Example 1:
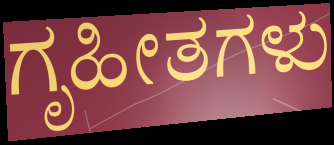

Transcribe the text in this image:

ಗೃಹೀತಗಳು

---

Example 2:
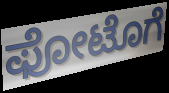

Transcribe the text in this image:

ಫೋಟೊಗೆ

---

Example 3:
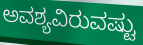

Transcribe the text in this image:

ಅವಶ್ಯವಿರುವಷ್ಟು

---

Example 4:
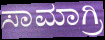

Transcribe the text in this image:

ಸಾಮಾಗ್ರಿ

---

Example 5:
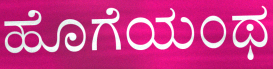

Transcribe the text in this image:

ಹೊಗೆಯಂಥ